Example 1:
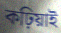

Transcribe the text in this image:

কঢ়িয়াই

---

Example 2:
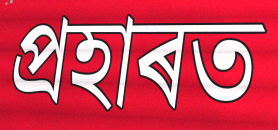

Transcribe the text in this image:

প্ৰহাৰত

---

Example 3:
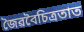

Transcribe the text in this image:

জৈৱবৈচিত্ৰতাত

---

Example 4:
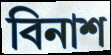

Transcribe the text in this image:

বিনাশ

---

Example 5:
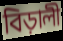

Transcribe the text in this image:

বিড়ালী